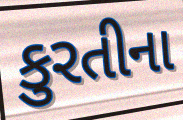
કુરતીના